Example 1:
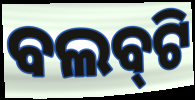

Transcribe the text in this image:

ବଲବ୍‌ଟି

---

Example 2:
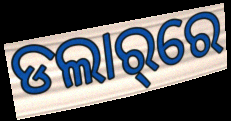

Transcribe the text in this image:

ଡଲାର୍‌ରେ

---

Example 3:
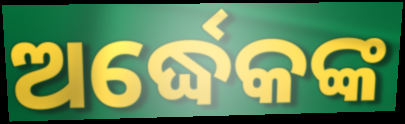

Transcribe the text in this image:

ଅର୍ଦ୍ଧେକଙ୍କ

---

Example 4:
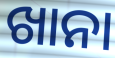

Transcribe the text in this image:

ଖାନା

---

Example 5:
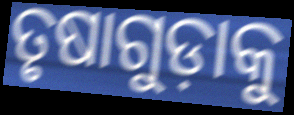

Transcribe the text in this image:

ତୃଷାଗୁଡ଼ାକୁ